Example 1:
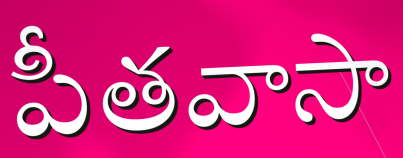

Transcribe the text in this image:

పీతవాసా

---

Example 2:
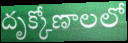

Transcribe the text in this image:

దృక్కోణాలలో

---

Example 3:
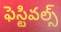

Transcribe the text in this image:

ఫెస్టివల్స్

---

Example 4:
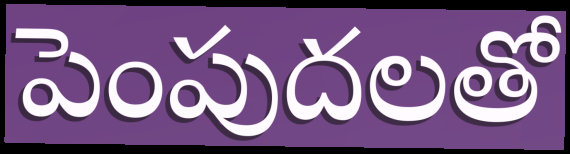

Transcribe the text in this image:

పెంపుదలతో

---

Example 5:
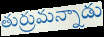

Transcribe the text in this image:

తుర్రుమన్నాడు